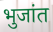
भुजांत